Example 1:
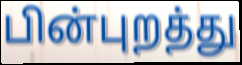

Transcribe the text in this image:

பின்புறத்து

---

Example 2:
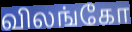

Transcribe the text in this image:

விலங்கோ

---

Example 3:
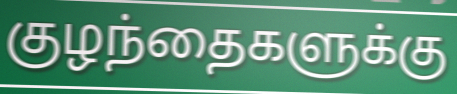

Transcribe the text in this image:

குழந்தைகளுக்கு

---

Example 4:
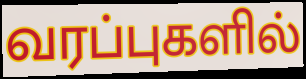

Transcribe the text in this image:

வரப்புகளில்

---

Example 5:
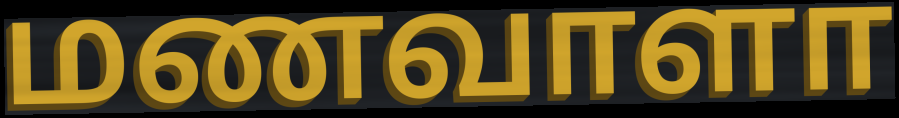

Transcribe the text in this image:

மணவாளா